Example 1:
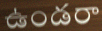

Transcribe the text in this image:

ఉండరా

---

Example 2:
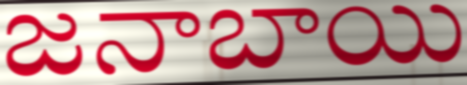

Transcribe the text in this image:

జనాబాయి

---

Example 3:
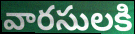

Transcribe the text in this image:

వారసులకి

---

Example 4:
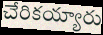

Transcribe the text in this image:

చేరికయ్యారు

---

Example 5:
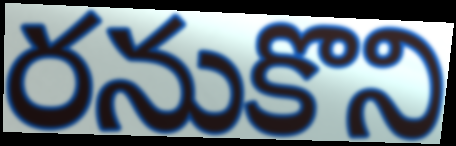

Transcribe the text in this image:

రనుకొని